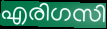
എരിഗസി